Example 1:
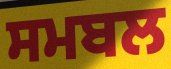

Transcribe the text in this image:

ਸਮਬਲ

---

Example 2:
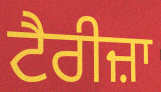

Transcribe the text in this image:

ਟੈਰੀਜ਼ਾ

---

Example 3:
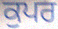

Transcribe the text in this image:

ਕੁਪਰ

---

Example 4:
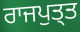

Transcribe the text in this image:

ਰਾਜਪੁਤ੍ਤ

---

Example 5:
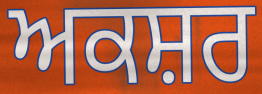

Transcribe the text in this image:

ਅਕਸ਼ਰ